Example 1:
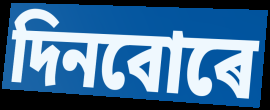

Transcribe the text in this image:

দিনবোৰে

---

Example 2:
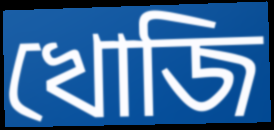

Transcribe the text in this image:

খোজি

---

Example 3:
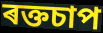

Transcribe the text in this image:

ৰক্তচাপ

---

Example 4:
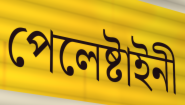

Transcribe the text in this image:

পেলেষ্টাইনী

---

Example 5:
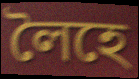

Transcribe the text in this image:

লৈহে